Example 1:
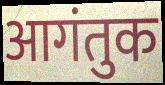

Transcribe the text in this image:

आगंतुक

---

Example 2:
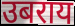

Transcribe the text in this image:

उबराय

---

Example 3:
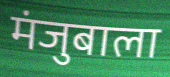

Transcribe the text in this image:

मंजुबाला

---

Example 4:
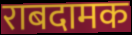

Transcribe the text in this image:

राबदामक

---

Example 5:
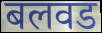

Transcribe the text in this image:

बलवड